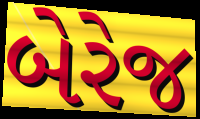
બેરેજ